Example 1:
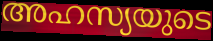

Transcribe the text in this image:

അഹസ്യയുടെ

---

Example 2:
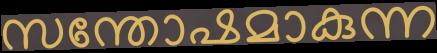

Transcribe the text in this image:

സന്തോഷമാകുന്ന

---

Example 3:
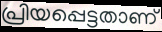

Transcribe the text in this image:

പ്രിയപ്പെട്ടതാണ്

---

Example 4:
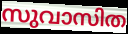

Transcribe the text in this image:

സുവാസിത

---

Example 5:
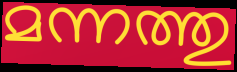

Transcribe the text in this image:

മന്നത്തു